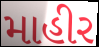
માહીર